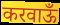
करवाऊँ